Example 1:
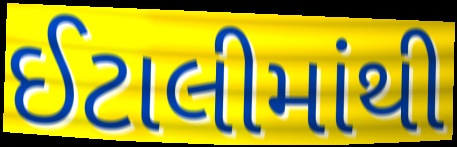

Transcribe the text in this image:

ઈટાલીમાંથી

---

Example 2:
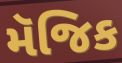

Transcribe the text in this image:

મૅજિક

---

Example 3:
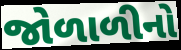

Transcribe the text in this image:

જોળાળીનો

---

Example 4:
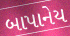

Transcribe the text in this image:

બાપાનેય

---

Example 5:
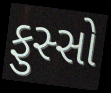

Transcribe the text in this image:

ફુસ્સો